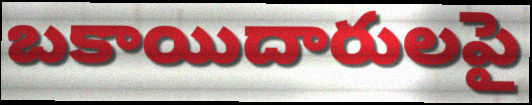
బకాయిదారులపై